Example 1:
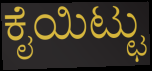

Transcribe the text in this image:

ಕೈಯಿಟ್ಟು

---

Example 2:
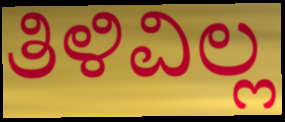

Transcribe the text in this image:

ತಿಳಿವಿಲ್ಲ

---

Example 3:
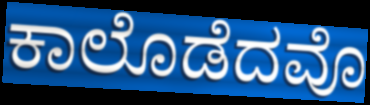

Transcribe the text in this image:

ಕಾಲೊಡೆದವೊ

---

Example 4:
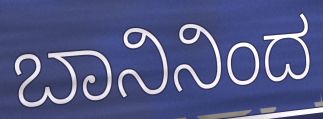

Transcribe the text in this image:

ಬಾನಿನಿಂದ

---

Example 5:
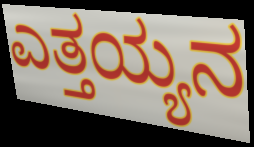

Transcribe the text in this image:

ಎತ್ತಯ್ಯನ